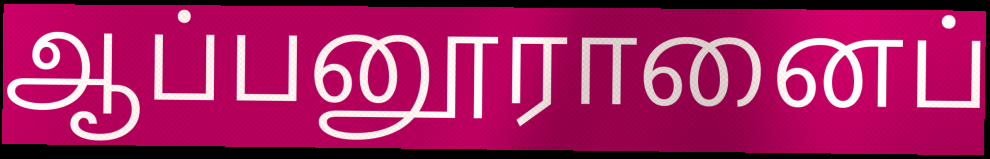
ஆப்பனூரானைப்